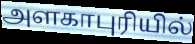
அளகாபுரியில்